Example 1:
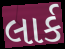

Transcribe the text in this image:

લાર્ક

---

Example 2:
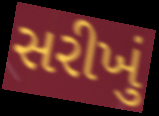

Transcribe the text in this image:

સરીખું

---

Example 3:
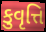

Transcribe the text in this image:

કુવૃત્તિ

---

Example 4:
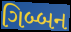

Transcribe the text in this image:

ગિબ્બન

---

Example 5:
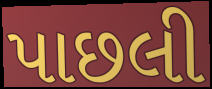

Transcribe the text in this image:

પાછલી